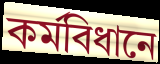
কর্মবিধানে